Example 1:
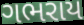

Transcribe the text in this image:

ગભરાય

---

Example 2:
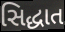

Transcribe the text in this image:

સિદ્ધાત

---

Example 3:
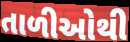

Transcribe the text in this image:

તાળીઓથી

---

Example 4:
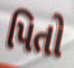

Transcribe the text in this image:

પિતો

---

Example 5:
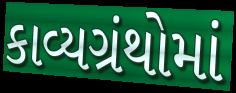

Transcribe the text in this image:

કાવ્યગ્રંથોમાં